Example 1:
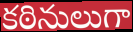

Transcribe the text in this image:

కఠినులుగా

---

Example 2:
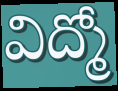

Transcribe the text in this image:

విద్మో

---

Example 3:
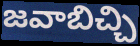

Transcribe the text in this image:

జవాబిచ్చి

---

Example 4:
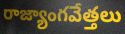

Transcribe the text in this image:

రాజ్యాంగవేత్తలు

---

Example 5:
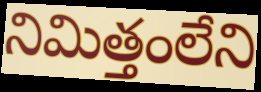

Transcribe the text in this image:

నిమిత్తంలేని